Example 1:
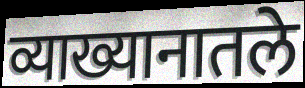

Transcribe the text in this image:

व्याख्यानातले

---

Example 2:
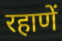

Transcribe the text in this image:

रहाणें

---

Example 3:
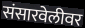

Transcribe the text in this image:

संसारवेलीवर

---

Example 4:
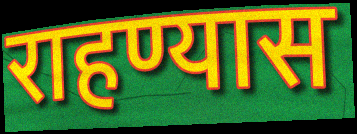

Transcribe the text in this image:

राहण्यास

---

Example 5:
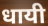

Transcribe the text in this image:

धायी